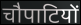
चौपाटियों